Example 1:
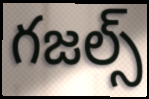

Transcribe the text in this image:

గజల్స్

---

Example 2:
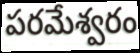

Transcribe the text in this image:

పరమేశ్వరం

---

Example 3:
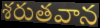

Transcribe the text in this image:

శరుతవాన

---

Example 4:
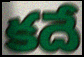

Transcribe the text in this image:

కదే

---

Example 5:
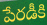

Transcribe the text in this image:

పేరడీకి